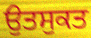
ਉਤਸੁਕਤ